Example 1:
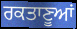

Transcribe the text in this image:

ਰਕਤਾਣੂਆਂ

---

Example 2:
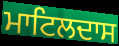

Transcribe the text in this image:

ਮਾਟਿਲਦਾਸ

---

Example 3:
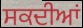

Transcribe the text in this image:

ਸਕਦੀਆਂ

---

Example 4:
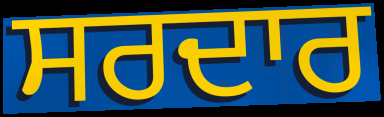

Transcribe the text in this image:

ਸਰਦਾਰ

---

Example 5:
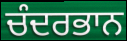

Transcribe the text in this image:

ਚੰਦਰਭਾਨ